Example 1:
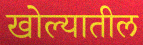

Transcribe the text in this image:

खोल्यातील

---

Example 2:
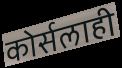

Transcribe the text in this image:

कोर्सलाही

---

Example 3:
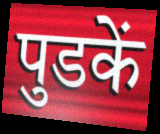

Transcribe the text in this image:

पुडकें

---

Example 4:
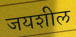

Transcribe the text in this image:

जयशील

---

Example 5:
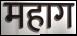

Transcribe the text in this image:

महाग